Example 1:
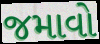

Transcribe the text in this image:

જમાવો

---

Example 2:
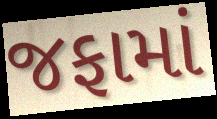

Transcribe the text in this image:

જફામાં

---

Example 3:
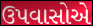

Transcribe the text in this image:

ઉપવાસોએ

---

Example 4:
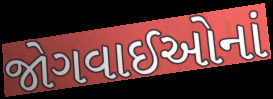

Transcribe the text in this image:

જોગવાઈઓનાં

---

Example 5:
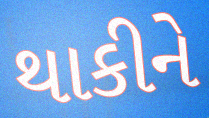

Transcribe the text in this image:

થાકીને